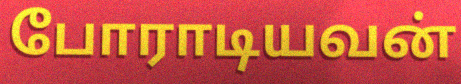
போராடியவன்